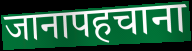
जानापहचाना